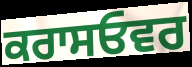
ਕਰਾਸਓਵਰ